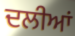
ਦਲੀਆਂ